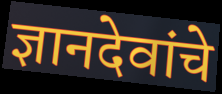
ज्ञानदेवांचे